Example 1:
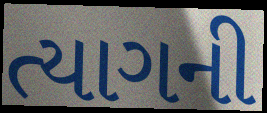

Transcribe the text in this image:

ત્‍યાગની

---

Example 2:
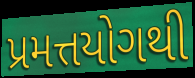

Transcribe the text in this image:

પ્રમત્તયોગથી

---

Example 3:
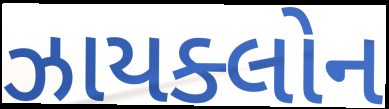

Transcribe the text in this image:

ઝાયક્લોન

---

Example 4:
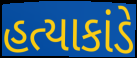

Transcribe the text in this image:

હત્યાકાંડે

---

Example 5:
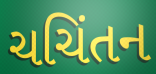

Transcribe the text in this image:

ચચિંતન